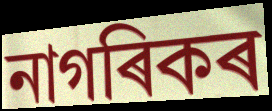
নাগৰিকৰ